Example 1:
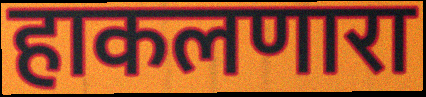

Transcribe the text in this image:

हाकलणारा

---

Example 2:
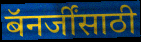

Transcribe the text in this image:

बॅनर्जींसाठी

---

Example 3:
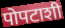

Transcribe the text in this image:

पोपटाशी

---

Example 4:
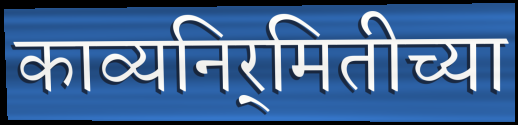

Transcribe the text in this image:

काव्यनिर्मितीच्या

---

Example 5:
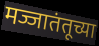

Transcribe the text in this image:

मज्जातंतूच्या